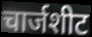
चार्जशीट